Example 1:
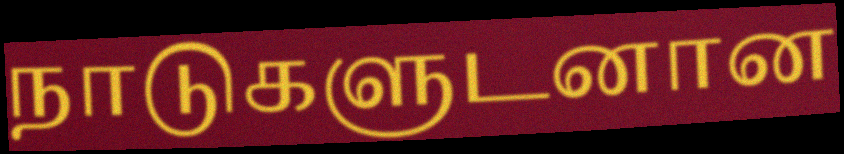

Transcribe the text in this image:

நாடுகளுடனான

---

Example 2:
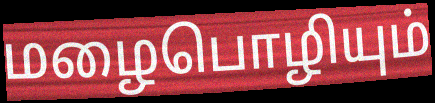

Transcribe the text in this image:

மழைபொழியும்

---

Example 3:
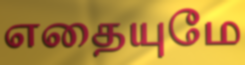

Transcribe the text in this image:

எதையுமே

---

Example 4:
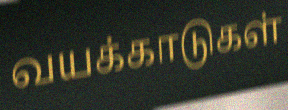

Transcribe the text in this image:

வயக்காடுகள்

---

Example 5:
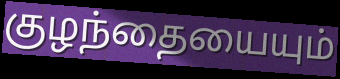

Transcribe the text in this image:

குழந்தையையும்